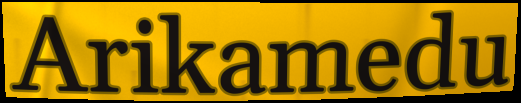
Arikamedu